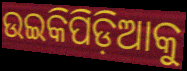
ଉଇକିପିଡ଼ିଆକୁ